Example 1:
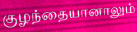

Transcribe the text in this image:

குழந்தையானாலும்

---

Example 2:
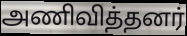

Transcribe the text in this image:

அணிவித்தனர்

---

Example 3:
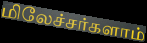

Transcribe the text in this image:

மிலேச்சர்களாம்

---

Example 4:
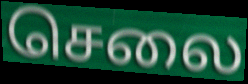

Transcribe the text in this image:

செலை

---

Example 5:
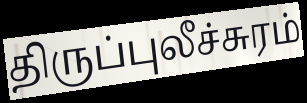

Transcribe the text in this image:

திருப்புலீச்சுரம்